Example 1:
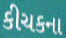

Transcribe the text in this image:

કીચકના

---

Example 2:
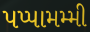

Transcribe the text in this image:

પપ્પામમ્મી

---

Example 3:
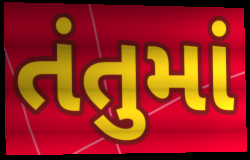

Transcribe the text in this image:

તંતુમાં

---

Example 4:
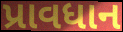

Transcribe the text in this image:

પ્રાવધાન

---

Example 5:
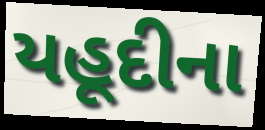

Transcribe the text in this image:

યહૂદીના